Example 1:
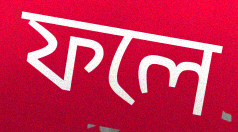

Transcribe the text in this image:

ফলে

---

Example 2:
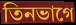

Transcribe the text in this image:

তিনভাগে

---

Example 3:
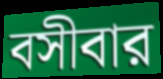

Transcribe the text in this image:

বসীবার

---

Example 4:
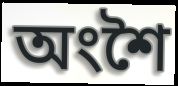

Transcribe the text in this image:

অংশৈ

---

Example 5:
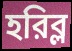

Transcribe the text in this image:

হরিব্ল